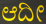
ಆದೀ